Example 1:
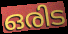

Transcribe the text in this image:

ഒരിട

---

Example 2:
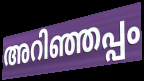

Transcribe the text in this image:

അറിഞ്ഞപ്പം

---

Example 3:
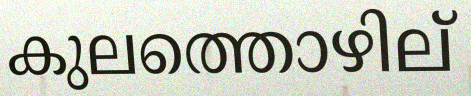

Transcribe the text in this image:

കുലത്തൊഴില്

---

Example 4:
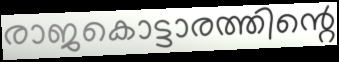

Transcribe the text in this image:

രാജകൊട്ടാരത്തിന്റെ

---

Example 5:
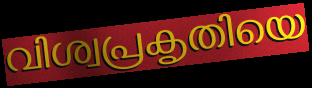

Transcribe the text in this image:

വിശ്വപ്രകൃതിയെ